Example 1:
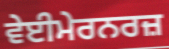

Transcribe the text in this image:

ਵੇਈਮੇਰਨਰਜ਼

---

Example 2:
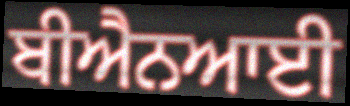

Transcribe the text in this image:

ਬੀਐਨਆਈ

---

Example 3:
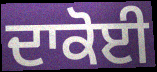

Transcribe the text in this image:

ਦਾਕੋਈ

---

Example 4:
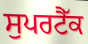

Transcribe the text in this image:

ਸੁਪਰਟੈੱਕ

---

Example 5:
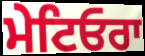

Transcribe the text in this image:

ਮੇਟਿਓਰਾ